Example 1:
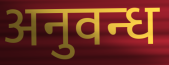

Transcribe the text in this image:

अनुवन्ध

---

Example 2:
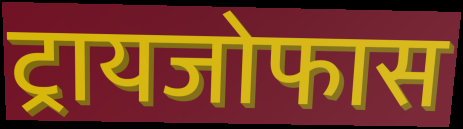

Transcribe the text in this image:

ट्रायजोफास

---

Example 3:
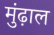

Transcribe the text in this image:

मुंढ़ाल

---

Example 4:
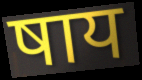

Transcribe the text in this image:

षाय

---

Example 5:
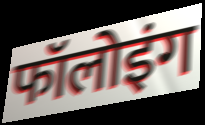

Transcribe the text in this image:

फॉलोइंग